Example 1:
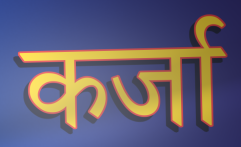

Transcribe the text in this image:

कर्जा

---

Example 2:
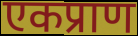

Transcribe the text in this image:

एकप्राण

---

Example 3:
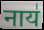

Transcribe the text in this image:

नाय॑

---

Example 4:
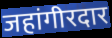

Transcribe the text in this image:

जहांगीरदार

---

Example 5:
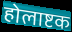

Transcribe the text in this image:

होलाष्टक